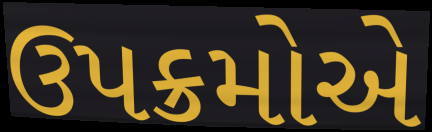
ઉપક્રમોએ